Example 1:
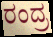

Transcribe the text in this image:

ರಂದ್ರ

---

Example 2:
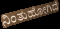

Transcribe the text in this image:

ನಿಂತುಹೋಗಿದೆ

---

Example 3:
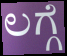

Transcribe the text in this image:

ಲಗ್ಗೆ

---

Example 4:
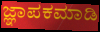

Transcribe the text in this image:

ಜ್ಞಾಪಕಮಾಡಿ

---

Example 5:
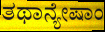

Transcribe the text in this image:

ತಥಾನ್ಯೇಷಾಂ